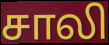
சாலி